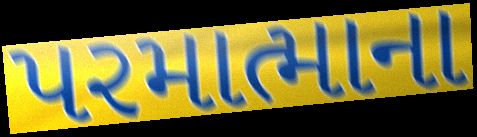
પરમાત્માના